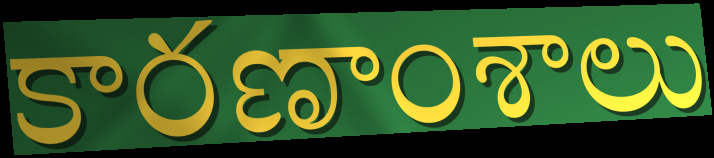
కారణాంశాలు